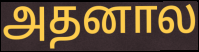
அதனால